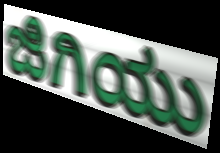
ಜಿಗಿಯು